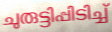
ചുരുട്ടിപ്പിടിച്ച്